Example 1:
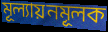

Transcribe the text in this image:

মূল্যায়নমূলক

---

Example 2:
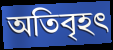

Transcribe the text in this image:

অতিবৃহৎ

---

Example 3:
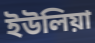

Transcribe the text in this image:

ইউলিয়া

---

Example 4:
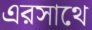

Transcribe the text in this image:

এরসাথে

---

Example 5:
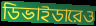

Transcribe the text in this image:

ডিভাইডারেও